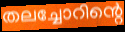
തലച്ചോറിന്റെ